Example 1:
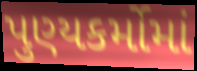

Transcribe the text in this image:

પુણ્યકર્મોમાં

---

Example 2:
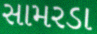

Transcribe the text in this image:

સામરડા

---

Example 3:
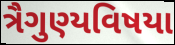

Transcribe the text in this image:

ત્રૈગુણ્યવિષયા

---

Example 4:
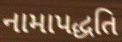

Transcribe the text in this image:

નામાપદ્ધતિ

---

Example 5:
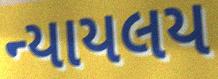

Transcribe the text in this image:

ન્યાયલય